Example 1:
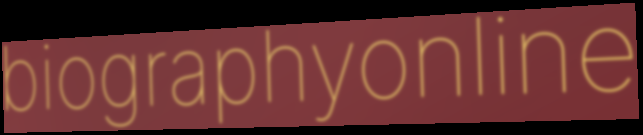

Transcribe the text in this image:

biographyonline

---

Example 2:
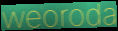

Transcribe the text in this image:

weoroda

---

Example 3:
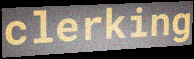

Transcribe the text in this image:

clerking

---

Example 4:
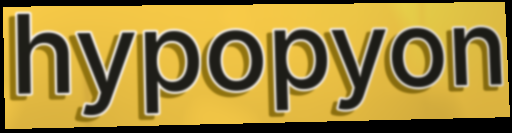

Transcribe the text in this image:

hypopyon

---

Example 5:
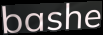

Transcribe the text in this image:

bashe